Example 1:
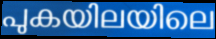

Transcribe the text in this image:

പുകയിലയിലെ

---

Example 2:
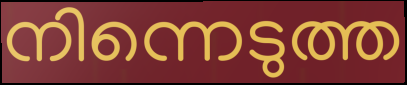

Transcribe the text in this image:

നിന്നെടുത്ത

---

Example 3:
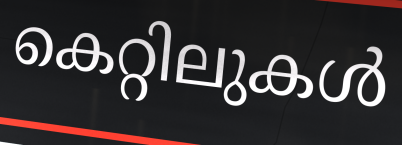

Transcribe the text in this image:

കെറ്റിലുകൾ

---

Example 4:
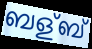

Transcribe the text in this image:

ബള്ബ്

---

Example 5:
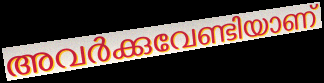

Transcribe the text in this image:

അവർക്കുവേണ്ടിയാണ്